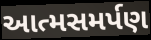
આત્મસમર્પણ